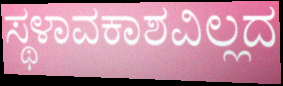
ಸ್ಥಳಾವಕಾಶವಿಲ್ಲದ